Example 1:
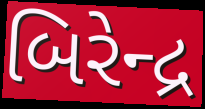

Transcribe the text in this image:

બિરેન્દ્ર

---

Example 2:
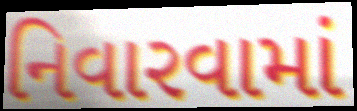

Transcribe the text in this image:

નિવારવામાં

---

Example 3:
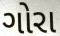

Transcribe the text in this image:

ગોરા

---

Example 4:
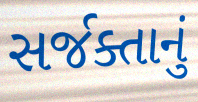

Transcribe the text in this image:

સર્જક્તાનું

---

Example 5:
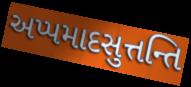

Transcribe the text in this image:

અપ્પમાદસુત્તન્તિ